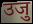
उजु